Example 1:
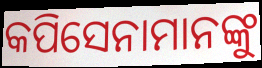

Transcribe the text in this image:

କପିସେନାମାନଙ୍କୁ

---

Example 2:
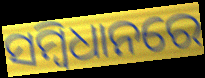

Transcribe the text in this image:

ସମ୍ବିଧାନରେ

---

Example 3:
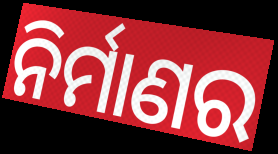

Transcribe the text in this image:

ନିର୍ମାଣର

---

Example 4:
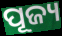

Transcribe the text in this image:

ପୂଜ୍ୟ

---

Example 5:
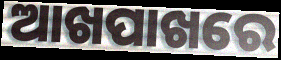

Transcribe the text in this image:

ଆଖପାଖରେ